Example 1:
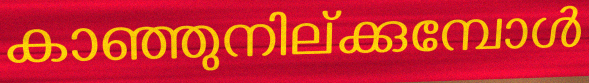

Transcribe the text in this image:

കാഞ്ഞുനില്ക്കുമ്പോൾ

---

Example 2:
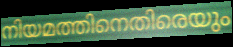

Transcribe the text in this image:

നിയമത്തിനെതിരെയും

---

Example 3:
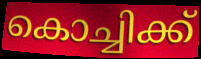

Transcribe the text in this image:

കൊച്ചിക്ക്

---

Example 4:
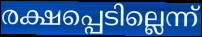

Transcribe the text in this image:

രക്ഷപ്പെടില്ലെന്ന്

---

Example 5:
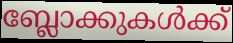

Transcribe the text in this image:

ബ്ലോക്കുകൾക്ക്